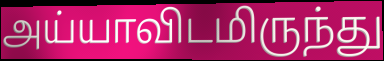
அய்யாவிடமிருந்து